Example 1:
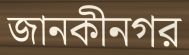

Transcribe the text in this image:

জানকীনগর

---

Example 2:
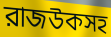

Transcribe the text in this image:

রাজউকসহ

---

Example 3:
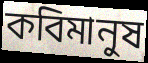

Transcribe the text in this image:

কবিমানুষ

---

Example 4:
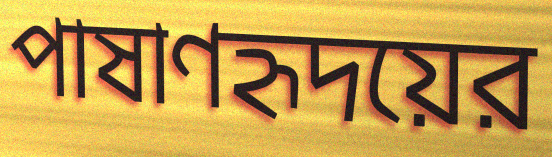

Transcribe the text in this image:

পাষাণহৃদয়ের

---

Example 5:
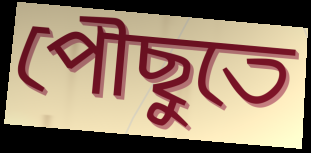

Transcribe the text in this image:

পৌছুতে